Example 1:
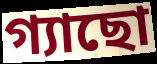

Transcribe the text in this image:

গ্যাছো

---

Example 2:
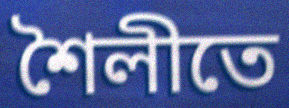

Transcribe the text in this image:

শৈলীতে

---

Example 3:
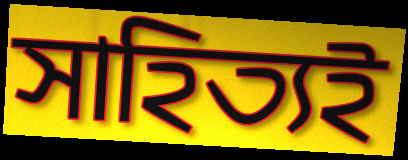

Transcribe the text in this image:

সাহিত্যই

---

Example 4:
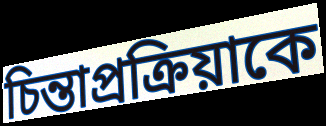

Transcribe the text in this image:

চিন্তাপ্রক্রিয়াকে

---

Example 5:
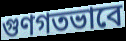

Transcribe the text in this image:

গুণগতভাবে